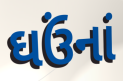
ઘઉંનાં